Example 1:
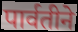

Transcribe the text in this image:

पार्वतीने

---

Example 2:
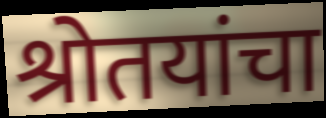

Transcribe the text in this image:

श्रोतयांचा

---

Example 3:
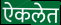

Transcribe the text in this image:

ऐकलेत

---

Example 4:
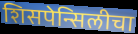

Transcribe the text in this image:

शिसपेन्सिलीचा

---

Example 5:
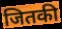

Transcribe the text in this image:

जितकी